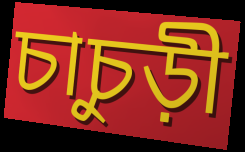
চাচুড়ী